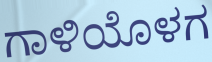
ಗಾಳಿಯೊಳಗ